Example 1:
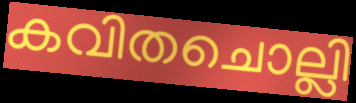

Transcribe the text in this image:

കവിതചൊല്ലി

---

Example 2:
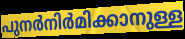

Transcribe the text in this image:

പുനർനിർമിക്കാനുള്ള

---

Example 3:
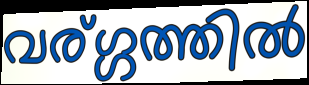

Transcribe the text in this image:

വര്ഗ്ഗത്തിൽ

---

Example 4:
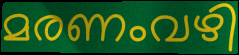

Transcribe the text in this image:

മരണംവഴി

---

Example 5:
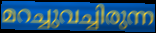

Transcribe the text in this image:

മറച്ചുവച്ചിരുന്ന